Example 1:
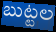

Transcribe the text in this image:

బుట్టల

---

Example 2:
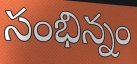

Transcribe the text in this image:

సంభిన్నం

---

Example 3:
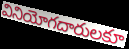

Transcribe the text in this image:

వినియోగదారులకూ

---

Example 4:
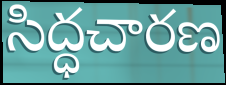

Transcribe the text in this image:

సిద్ధచారణ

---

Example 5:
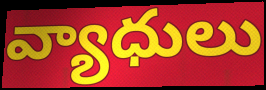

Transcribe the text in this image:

వ్యాధులు